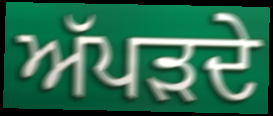
ਅੱਪੜਦੇ